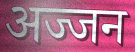
अज्जन